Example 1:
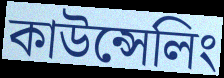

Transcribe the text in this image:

কাউন্সেলিং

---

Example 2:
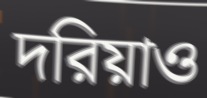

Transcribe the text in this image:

দরিয়াও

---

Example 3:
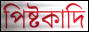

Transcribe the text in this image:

পিষ্টকাদি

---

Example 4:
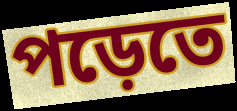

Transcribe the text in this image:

পড়েতে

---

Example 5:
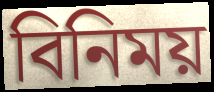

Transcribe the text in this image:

বিনিময়